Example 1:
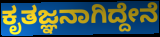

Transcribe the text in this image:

ಕೃತಜ್ಞನಾಗಿದ್ದೇನೆ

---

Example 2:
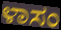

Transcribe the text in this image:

ಳಾಸಂ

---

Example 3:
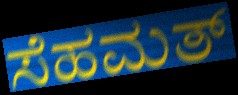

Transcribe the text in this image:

ಸೆಹಮತ್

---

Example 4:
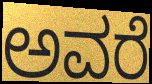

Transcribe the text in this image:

ಅವರೆ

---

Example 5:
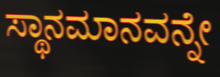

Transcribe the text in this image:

ಸ್ಥಾನಮಾನವನ್ನೇ